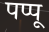
पप्‍पू